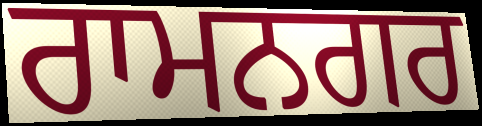
ਰਾਮਨਗਰ